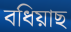
বধিয়াছ